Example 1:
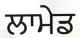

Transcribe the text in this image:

ਲਾਮੇਡ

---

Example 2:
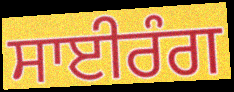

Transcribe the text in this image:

ਸਾਈਰੰਗ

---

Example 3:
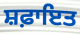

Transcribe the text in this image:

ਸ਼ਫ਼ਾਇਤ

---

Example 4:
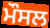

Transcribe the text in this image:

ਮੌਸਲ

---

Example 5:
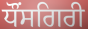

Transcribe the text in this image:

ਧੌਂਸਗਿਰੀ